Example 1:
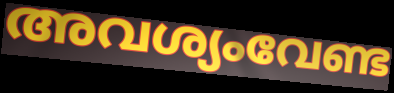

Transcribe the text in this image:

അവശ്യംവേണ്ട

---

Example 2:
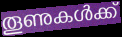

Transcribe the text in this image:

തൂണുകൾക്ക്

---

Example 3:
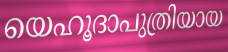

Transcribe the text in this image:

യെഹൂദാപുത്രിയായ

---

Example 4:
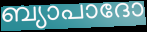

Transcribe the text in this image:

ബ്യാപാദോ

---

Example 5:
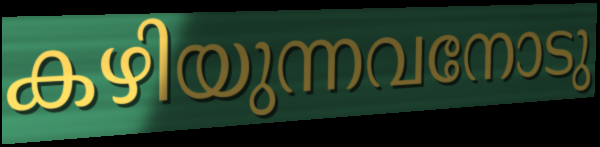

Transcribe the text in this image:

കഴിയുന്നവനോടു